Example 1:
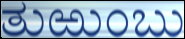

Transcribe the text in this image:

ತುಱುಂಬು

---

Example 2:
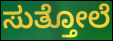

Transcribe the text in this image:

ಸುತ್ತೋಲೆ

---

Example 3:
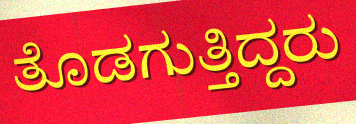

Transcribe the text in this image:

ತೊಡಗುತ್ತಿದ್ದರು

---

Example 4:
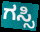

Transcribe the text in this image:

ಗಸ್ಸಿ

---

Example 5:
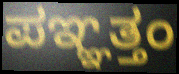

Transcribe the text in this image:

ಪಞ್ಞತ್ತಂ